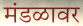
मंडळावर